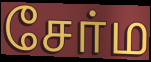
சேர்ம